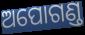
ଅପୋଗଣ୍ଡ